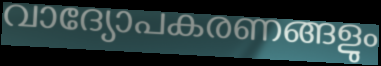
വാദ്യോപകരണങ്ങളും